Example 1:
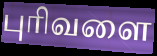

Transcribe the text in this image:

புரிவளை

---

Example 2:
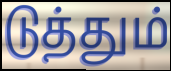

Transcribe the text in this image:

டுத்தும்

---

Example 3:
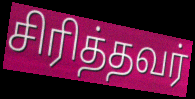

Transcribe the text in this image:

சிரித்தவர்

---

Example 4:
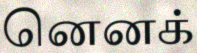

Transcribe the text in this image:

னெனக்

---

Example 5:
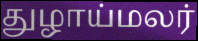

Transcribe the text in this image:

துழாய்மலர்